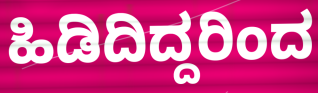
ಹಿಡಿದಿದ್ದರಿಂದ